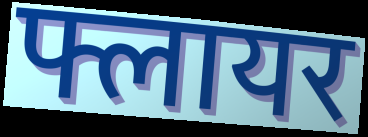
फ्लायर